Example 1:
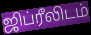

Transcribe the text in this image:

ஜிப்ரீலிடம்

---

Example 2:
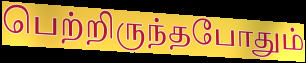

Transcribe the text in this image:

பெற்றிருந்தபோதும்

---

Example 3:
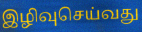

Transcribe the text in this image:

இழிவுசெய்வது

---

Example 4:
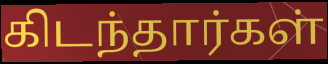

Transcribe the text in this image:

கிடந்தார்கள்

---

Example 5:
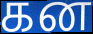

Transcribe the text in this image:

கன